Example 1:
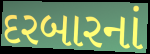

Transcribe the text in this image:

દરબારનાં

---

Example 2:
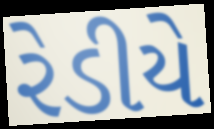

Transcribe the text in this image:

રેડીયે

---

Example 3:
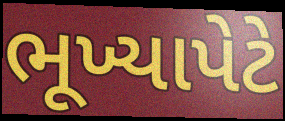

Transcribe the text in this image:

ભૂખ્યાપેટે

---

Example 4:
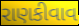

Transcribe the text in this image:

રાણકીવાવ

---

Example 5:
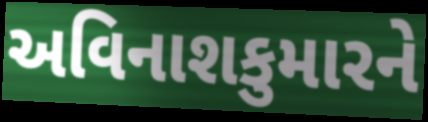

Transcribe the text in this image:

અવિનાશકુમારને